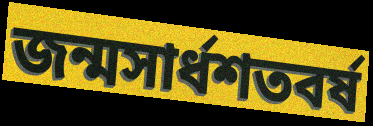
জন্মসার্ধশতবর্ষ